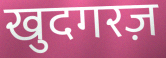
खुदगरज़